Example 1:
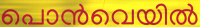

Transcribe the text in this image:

പൊൻവെയിൽ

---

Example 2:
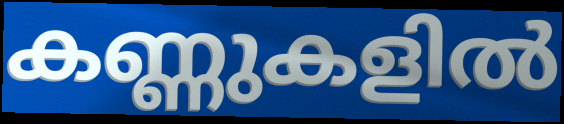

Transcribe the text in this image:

കണ്ണുകളിൽ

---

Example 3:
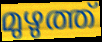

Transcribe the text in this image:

മുഴുത്ത്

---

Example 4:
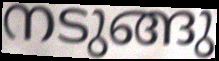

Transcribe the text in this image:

നടുങ്ങു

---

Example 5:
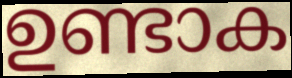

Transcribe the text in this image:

ഉണ്ടാക